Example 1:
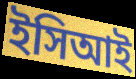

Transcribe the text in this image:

ইসিআই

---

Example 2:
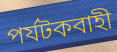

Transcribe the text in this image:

পর্যটকবাহী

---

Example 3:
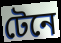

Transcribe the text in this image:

টেনে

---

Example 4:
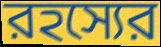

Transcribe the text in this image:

রহস্যের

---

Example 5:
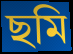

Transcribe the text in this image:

ছমি